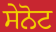
ਸੇਨੋਟ